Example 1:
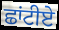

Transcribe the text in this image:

ਛਾਂਟੀਏ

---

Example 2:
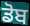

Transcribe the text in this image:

ਡੋਬ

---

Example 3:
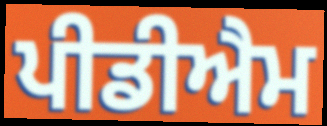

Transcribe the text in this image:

ਪੀਡੀਐਮ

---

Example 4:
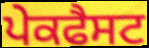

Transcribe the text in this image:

ਪੇਕਫੈਸਟ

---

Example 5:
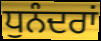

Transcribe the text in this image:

ਧੁਨੰਦਰਾਂ